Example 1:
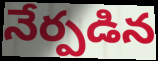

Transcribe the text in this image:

నేర్పడిన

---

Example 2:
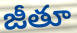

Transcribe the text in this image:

జీతూ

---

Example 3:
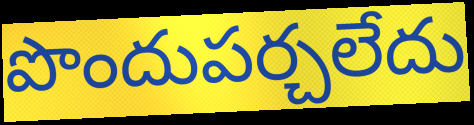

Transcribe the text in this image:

పొందుపర్చలేదు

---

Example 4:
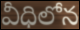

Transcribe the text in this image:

వీధిలోన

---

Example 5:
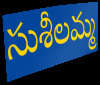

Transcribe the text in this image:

సుశీలమ్మ